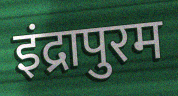
इंद्रापुरम